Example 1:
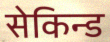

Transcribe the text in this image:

सेकिन्ड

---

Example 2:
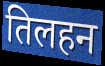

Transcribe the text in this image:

तिलहन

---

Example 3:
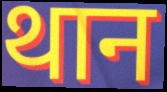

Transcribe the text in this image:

थान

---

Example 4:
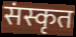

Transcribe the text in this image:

संस्‍कृत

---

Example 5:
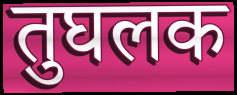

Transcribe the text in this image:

तुघलक